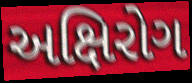
અક્ષિરોગ